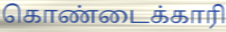
கொண்டைக்காரி